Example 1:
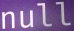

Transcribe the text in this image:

null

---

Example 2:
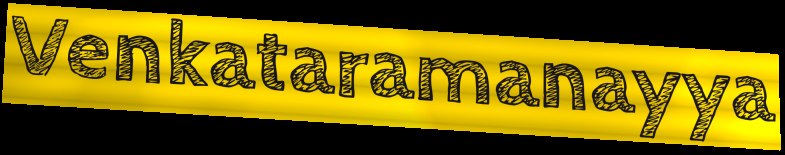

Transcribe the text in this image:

Venkataramanayya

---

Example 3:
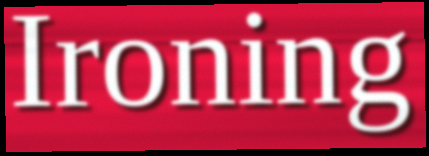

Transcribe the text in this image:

Ironing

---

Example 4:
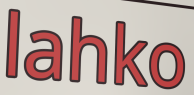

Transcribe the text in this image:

lahko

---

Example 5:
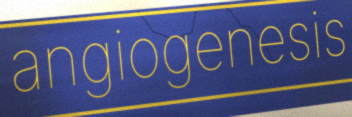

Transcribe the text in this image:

angiogenesis